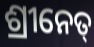
ଶ୍ରୀନେତ୍